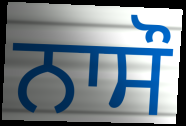
ਨਾਸੌ